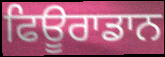
ਫਿਊਰਾਡਾਨ